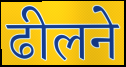
ढीलने